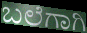
ಬಲೆಗಾಗಿ